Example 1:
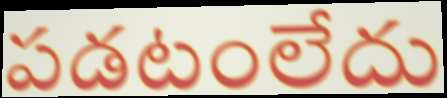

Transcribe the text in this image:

పడటంలేదు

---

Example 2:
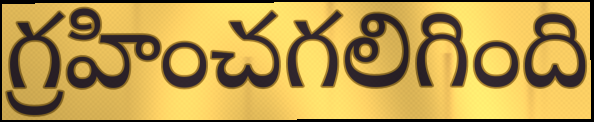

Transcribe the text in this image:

గ్రహించగలిగింది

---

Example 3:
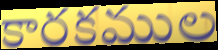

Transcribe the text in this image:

కారకముల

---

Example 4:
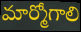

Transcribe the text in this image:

మార్మోగాలి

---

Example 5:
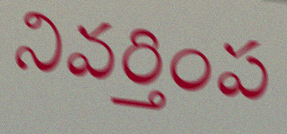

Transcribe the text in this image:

నివర్తింప